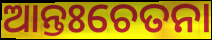
ଆନ୍ତଃଚେତନା